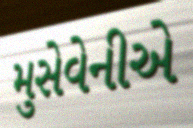
મુસેવેનીએ